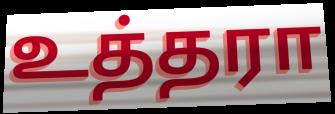
உத்தரா